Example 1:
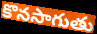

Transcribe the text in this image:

కొనసాగుతు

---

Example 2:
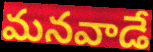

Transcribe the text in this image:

మనవాడే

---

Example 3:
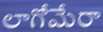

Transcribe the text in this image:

లాగోమేరా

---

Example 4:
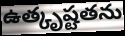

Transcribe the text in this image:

ఉత్కృష్టతను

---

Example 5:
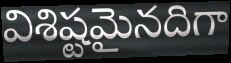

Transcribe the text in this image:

విశిష్టమైనదిగా